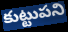
కుట్టుపని